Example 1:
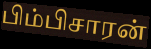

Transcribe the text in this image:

பிம்பிசாரன்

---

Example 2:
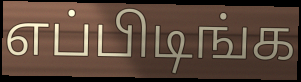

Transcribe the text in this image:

எப்பிடிங்க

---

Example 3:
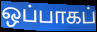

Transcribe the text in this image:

ஒப்பாகப்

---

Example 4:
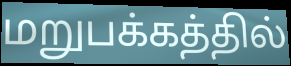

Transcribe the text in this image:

மறுபக்கத்தில்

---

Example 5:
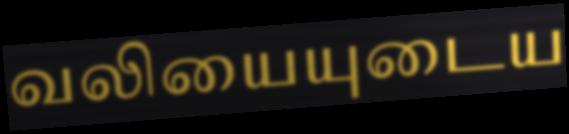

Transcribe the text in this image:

வலியையுடைய